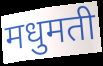
मधुमती